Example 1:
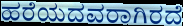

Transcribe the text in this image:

ಹರೆಯದವರಾಗಿರದೆ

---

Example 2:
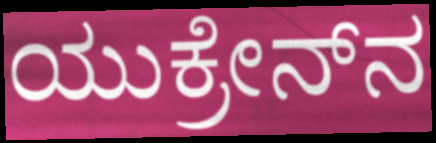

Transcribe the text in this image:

ಯುಕ್ರೇನ್‌ನ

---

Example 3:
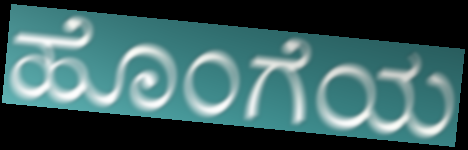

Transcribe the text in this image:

ಹೊಂಗೆಯ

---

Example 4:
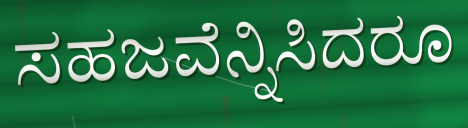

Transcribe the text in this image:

ಸಹಜವೆನ್ನಿಸಿದರೂ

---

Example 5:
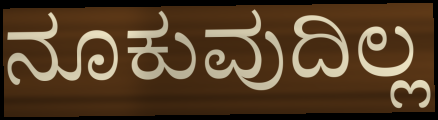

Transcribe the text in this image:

ನೂಕುವುದಿಲ್ಲ